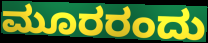
ಮೂರರಂದು